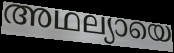
അഥല്യായെ